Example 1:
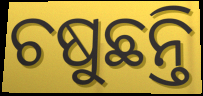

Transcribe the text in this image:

ଚଷୁଛନ୍ତି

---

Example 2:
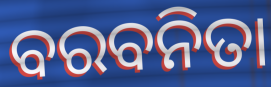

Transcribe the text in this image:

ବରବନିତା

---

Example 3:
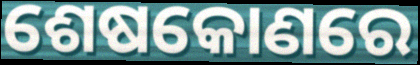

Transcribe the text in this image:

ଶେଷକୋଣରେ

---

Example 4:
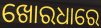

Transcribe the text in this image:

ଖୋରଧାରେ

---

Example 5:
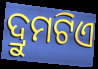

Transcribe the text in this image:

ଦ୍ରୁମଟିଏ